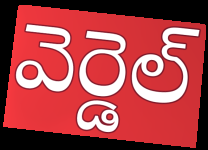
వెర్డెల్